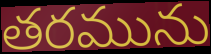
తరమును